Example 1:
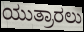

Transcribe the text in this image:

ಯುತ್ರಾರಲು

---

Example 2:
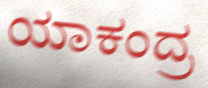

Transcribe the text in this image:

ಯಾಕಂದ್ರ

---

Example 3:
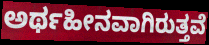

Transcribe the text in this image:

ಅರ್ಥಹೀನವಾಗಿರುತ್ತವೆ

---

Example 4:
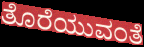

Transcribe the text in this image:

ತೊರೆಯುವಂತೆ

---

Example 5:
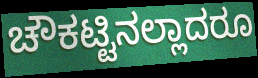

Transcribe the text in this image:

ಚೌಕಟ್ಟಿನಲ್ಲಾದರೂ